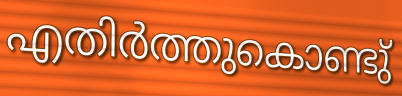
എതിർത്തുകൊണ്ടു്